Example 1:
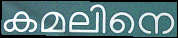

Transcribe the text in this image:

കമലിനെ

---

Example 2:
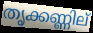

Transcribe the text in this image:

തൃക്കണ്ണില്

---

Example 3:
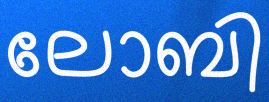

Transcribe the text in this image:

ലോബി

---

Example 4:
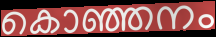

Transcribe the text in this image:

കൊഞ്ഞനം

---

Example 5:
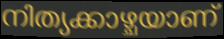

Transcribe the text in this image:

നിത്യക്കാഴ്ചയാണ്